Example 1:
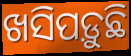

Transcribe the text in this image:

ଖସିପଡ଼ୁଛି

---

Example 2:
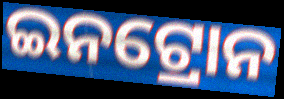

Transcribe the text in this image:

ଇନଟ୍ରୋନ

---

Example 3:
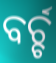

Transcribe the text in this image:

ବର୍ଚ୍ଚ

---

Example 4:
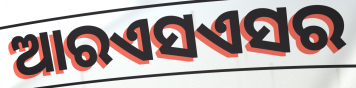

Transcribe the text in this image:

ଆରଏସଏସର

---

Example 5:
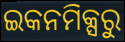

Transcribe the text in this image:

ଇକନମିକ୍ସରୁ